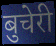
बुचेरी